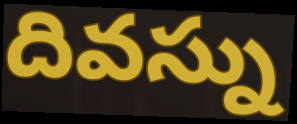
దివస్ను